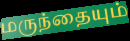
மருந்தையும்